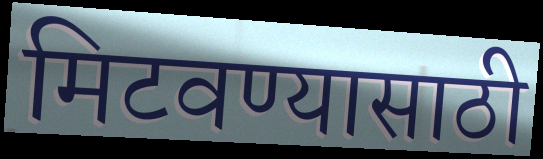
मिटवण्यासाठी